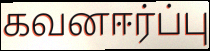
கவனஈர்ப்பு